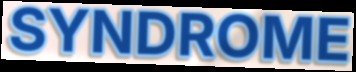
SYNDROME